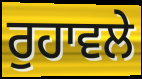
ਰੁਹਾਵਲੇ